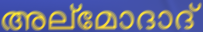
അല്മോദാദ്